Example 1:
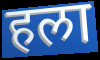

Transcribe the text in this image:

हला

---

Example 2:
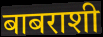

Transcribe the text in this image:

बाबराशी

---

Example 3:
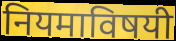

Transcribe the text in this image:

नियमाविषयी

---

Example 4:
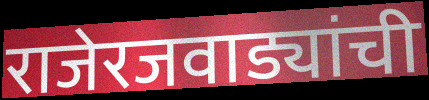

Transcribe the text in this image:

राजेरजवाड्यांची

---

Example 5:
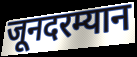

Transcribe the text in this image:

जूनदरम्यान